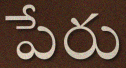
పేరు